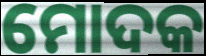
ମୋଦକ